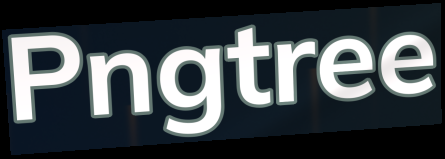
Pngtree